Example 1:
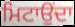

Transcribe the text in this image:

ਮਿਟਾਉਂਦਾ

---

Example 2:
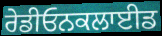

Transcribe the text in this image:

ਰੇਡੀਓਨਕਲਾਈਡ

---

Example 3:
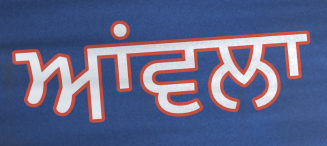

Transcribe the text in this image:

ਆਂਵਲਾ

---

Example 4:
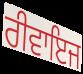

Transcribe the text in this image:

ਰੀਵਾਇਜ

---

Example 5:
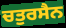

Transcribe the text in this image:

ਚਤੁਰਸੈਨ